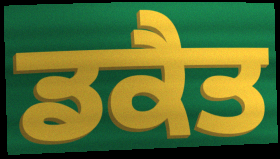
ਡਕੈਤ